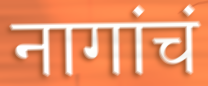
नागांचं